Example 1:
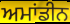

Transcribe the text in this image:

ਅਮਾਂਡੀਨ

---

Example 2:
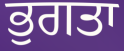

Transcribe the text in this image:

ਭੁਗਤਾ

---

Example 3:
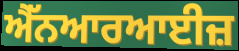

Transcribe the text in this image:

ਐੱਨਆਰਆਈਜ਼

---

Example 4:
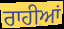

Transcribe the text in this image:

ਰਾਹੀਆਂ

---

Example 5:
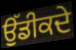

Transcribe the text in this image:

ਉੱਡੀਕਦੇ